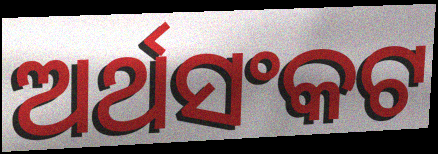
ଅର୍ଥସଂକଟ